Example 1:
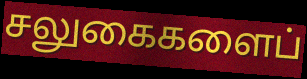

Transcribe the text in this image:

சலுகைகளைப்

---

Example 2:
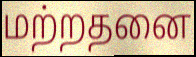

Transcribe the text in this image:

மற்றதனை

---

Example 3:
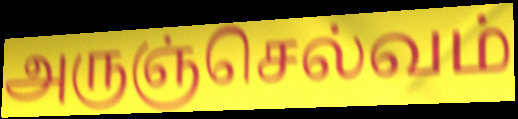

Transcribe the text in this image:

அருஞ்செல்வம்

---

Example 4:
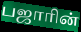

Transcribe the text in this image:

பஜாரின்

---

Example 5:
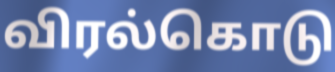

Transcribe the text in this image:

விரல்கொடு